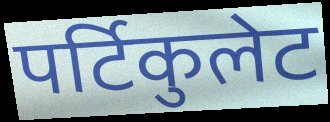
पर्टिकुलेट